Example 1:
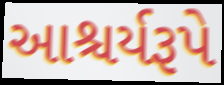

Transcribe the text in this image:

આશ્ચર્યરૂપે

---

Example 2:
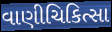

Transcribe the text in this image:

વાણીચિકિત્સા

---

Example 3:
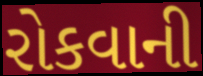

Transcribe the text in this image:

રોકવાની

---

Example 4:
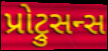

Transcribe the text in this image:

પ્રોટ્રુસન્સ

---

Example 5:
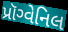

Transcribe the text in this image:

પ્રૉગ્વેનિલ